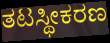
ತಟಸ್ಥೀಕರಣ